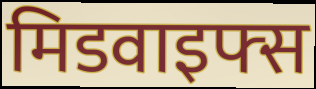
मिडवाइफ्स